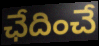
ఛేదించే